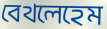
বেথলেহেম